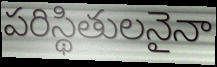
పరిస్థితులనైనా